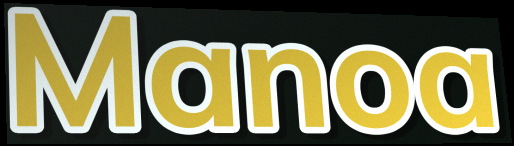
Manoa